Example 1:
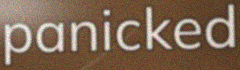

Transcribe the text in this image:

panicked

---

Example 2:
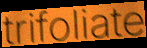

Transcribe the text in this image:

trifoliate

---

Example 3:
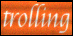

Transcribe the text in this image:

trolling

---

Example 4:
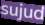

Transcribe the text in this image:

sujud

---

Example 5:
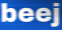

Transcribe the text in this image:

beej